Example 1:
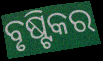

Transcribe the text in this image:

ବୃଷ୍ଟିକର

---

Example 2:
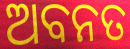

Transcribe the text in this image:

ଅବନତ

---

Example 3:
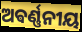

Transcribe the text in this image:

ଅଵର୍ଣ୍ଣନୀୟ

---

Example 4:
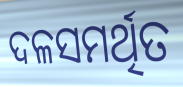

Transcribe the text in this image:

ଦଳସମର୍ଥିତ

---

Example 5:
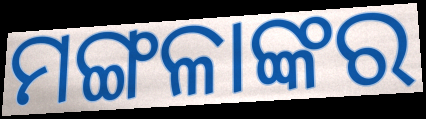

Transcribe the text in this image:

ମଙ୍ଗଳାଙ୍କର